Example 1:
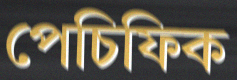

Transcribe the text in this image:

পেচিফিক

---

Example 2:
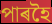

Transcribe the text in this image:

পাৰহৈ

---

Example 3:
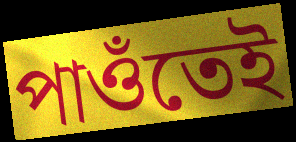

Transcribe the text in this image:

পাওঁতেই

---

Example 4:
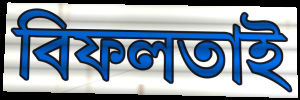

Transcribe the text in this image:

বিফলতাই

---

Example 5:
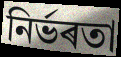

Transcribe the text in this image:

নিৰ্ভৰতা